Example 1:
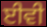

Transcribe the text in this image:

ਈਵੀ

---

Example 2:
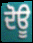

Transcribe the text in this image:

ਦੋਊ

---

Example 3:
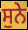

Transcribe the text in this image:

ਸੁਨੇ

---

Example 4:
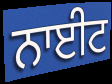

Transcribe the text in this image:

ਨਾਈਟ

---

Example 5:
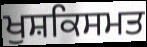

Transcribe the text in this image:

ਖੁਸ਼ਕਿਸਮਤ